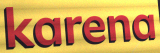
karena